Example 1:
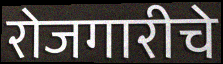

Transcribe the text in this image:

रोजगारीचे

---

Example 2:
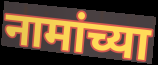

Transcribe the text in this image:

नामांच्या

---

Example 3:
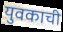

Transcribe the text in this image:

युवकाची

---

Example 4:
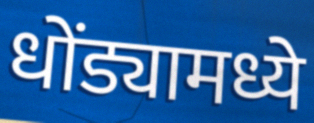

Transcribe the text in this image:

धोंड्यामध्ये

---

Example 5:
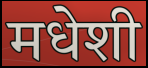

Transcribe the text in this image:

मधेशी